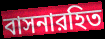
বাসনারহিত